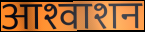
आश्वाशन